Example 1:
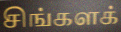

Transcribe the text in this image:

சிங்களக்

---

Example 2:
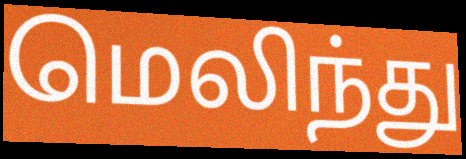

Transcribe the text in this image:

மெலிந்து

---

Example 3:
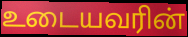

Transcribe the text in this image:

உடையவரின்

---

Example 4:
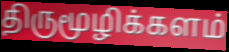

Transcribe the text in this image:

திருமூழிக்களம்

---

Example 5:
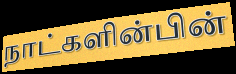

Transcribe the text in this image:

நாட்களின்பின்